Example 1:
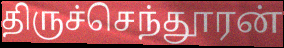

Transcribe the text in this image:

திருச்செந்தூரன்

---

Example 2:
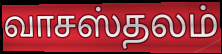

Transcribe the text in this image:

வாசஸ்தலம்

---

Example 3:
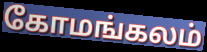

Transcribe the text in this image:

கோமங்கலம்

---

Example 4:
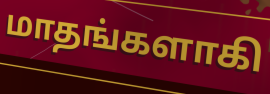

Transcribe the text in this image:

மாதங்களாகி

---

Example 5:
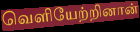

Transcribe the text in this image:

வெளியேற்றினான்